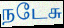
நடேசு